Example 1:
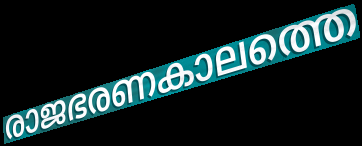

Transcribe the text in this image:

രാജഭരണകാലത്തെ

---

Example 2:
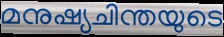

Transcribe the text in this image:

മനുഷ്യചിന്തയുടെ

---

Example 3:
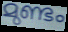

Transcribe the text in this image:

മുണ്ടം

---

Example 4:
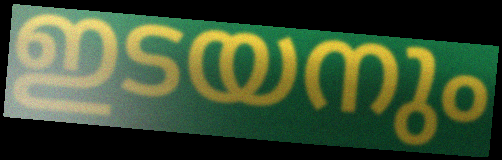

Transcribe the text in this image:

ഇടയനും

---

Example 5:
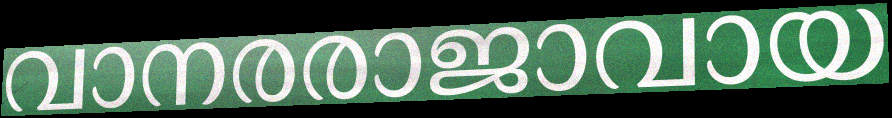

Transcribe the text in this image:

വാനരരാജാവായ